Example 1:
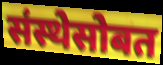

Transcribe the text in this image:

संस्थेसोबत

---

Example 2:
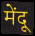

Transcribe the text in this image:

मेंदू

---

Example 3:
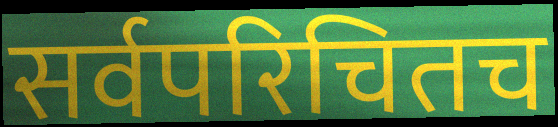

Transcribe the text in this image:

सर्वपरिचितच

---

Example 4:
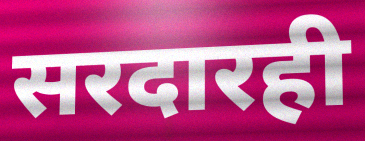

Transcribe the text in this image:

सरदारही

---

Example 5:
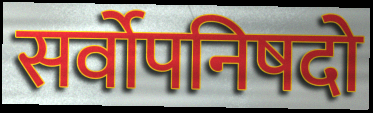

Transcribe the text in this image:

सर्वोपनिषदो